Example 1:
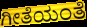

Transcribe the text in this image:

ಗೀತೆಯಂತೆ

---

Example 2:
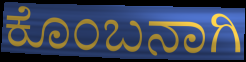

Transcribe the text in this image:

ಕೊಂಬನಾಗಿ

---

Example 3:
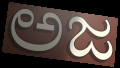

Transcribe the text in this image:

ಅಜ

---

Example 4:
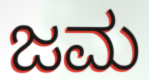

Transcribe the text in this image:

ಜಮ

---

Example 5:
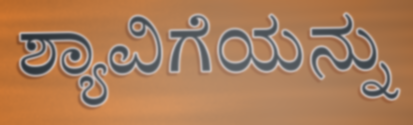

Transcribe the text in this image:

ಶ್ಯಾವಿಗೆಯನ್ನು